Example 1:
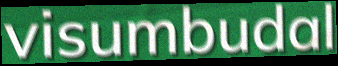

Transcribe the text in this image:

visumbudal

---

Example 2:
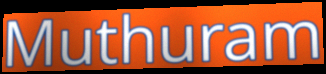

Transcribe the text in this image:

Muthuram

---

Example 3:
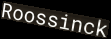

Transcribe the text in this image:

Roossinck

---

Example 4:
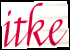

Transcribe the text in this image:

itke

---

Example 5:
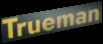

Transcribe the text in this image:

Trueman